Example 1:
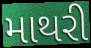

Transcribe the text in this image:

માથરી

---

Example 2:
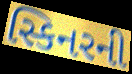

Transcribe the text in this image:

સ્કિનરની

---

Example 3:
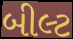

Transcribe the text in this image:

બીલ્ટ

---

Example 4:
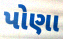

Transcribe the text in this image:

પોણા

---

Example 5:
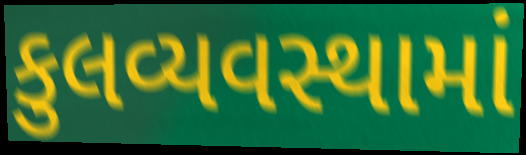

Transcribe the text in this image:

કુલવ્યવસ્થામાં